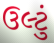
ઉલ્ટું